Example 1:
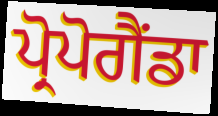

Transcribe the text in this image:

ਪ੍ਰੋਪੋਗੈਂਡਾ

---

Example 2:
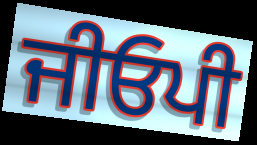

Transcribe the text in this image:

ਜੀਓਪੀ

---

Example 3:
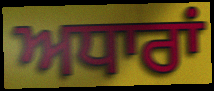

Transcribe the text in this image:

ਅਧਾਰਾਂ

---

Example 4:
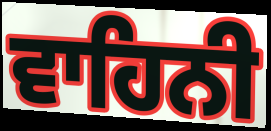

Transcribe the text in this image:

ਵਾਹਿਨੀ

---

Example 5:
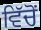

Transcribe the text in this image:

ਵਿੱਚੋੰ